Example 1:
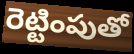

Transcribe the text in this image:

రెట్టింపుతో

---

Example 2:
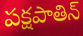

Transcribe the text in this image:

పక్షపాతిన్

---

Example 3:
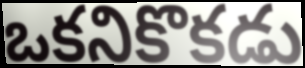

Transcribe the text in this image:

ఒకనికొకడు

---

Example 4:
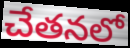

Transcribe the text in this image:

చేతనలో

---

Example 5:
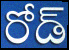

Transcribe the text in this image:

రోడ్